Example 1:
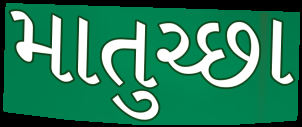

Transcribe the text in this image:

માતુચ્છા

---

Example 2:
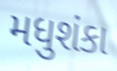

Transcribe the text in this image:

મધુશંકા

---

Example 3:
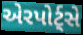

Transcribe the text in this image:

એરપોર્ટ્સે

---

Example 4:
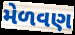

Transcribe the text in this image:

મેળવણ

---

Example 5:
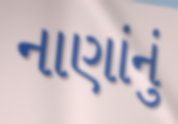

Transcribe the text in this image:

નાણાંનું